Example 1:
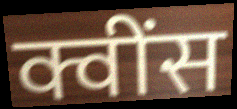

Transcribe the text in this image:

क्वींस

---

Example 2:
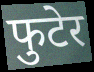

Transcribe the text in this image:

फुटेर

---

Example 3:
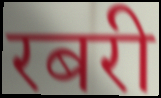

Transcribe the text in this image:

रबरी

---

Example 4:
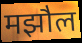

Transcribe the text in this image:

मझौल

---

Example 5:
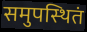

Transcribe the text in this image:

समुपस्थितं